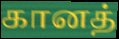
கானத்